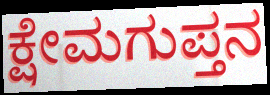
ಕ್ಷೇಮಗುಪ್ತನ